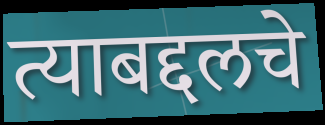
त्याबद्दलचे